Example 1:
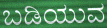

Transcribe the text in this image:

ಬಡಿಯುವ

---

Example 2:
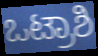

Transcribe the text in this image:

ಒಟ್ರಾಶಿ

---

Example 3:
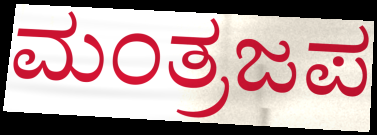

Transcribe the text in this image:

ಮಂತ್ರಜಪ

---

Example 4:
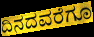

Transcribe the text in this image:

ದಿನದವರೆಗೂ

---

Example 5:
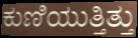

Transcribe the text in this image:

ಕುಣಿಯುತ್ತಿತ್ತು